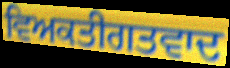
ਵਿਅਕਤੀਗਤਵਾਦ